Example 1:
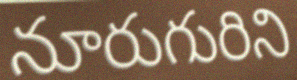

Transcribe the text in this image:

నూరుగురిని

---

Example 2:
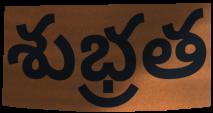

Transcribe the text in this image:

శుభ్రత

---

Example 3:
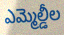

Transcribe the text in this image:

ఎమ్మెల్డీల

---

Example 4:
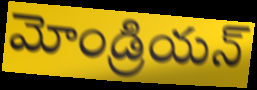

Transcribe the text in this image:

మోండ్రియన్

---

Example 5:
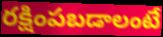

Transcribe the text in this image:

రక్షింపబడాలంటే